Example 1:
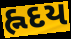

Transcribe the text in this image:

હ્નદય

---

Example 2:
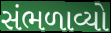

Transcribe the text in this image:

સંભળાવ્યો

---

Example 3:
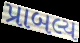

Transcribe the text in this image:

પ્રાબલ્ય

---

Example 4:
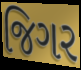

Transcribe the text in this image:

જિગર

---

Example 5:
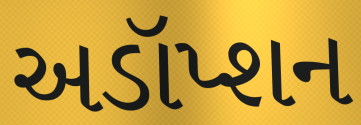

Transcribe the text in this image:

અડૉપ્શન